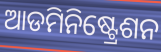
ଆଡମିନିଷ୍ଟ୍ରେଶନ